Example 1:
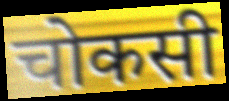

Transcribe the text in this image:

चोकसी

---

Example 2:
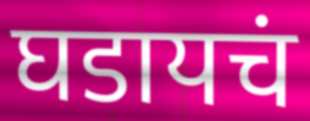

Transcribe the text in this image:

घडायचं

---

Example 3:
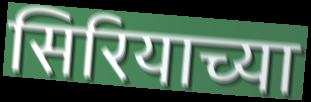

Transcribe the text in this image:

सिरियाच्या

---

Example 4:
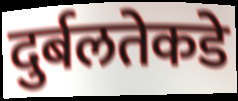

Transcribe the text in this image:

दुर्बलतेकडे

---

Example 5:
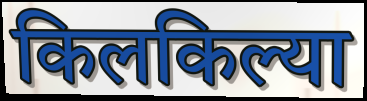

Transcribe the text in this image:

किलकिल्या